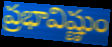
ప్రభావిష్ణుం